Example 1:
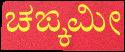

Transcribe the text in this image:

ಚಙ್ಕಮೀ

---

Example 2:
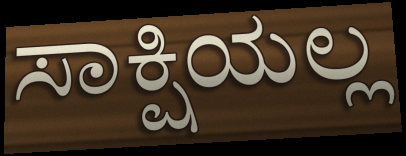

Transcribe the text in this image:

ಸಾಕ್ಷಿಯಲ್ಲ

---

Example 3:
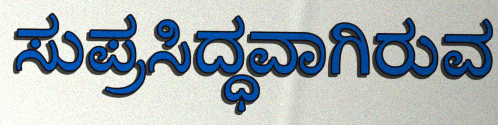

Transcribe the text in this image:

ಸುಪ್ರಸಿದ್ಧವಾಗಿರುವ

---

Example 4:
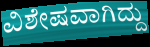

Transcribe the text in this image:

ವಿಶೇಷವಾಗಿದ್ದು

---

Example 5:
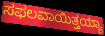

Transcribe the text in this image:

ಸಫಲವಾಯಿತ್ತಯ್ಯಾ